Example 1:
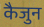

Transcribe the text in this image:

कैजुन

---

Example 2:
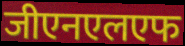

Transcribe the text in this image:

जीएनएलएफ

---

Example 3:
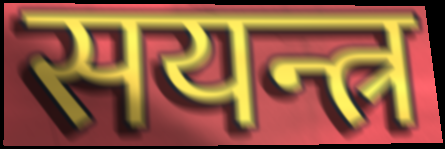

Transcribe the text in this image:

सयन्त्र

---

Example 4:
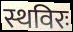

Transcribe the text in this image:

स्थविरः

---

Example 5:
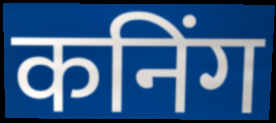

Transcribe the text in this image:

कनिंग